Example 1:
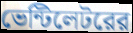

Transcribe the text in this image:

ভেন্টিলেটরের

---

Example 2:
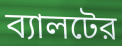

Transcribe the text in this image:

ব্যালটের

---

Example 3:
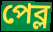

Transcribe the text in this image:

পেব্ল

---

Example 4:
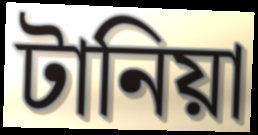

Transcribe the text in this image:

টানিয়া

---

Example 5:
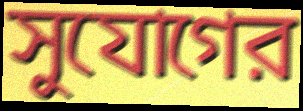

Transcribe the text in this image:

সুযোগের